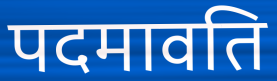
पदमावति